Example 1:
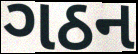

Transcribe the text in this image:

ગઠન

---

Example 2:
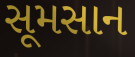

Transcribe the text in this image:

સૂમસાન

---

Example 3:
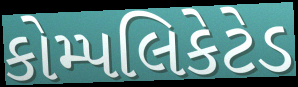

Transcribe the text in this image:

કોમ્પલિકેટેડ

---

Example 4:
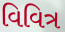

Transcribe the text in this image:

વિવિત્ર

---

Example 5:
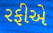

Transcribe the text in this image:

રફીએ